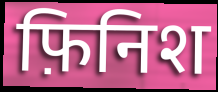
फ़िनिश